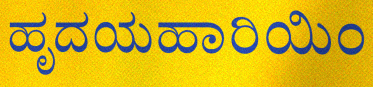
ಹೃದಯಹಾರಿಯಿಂ